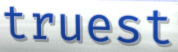
truest